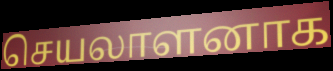
செயலாளனாக